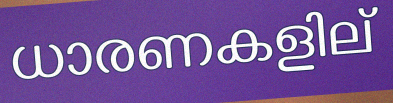
ധാരണകളില്